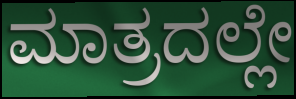
ಮಾತ್ರದಲ್ಲೇ